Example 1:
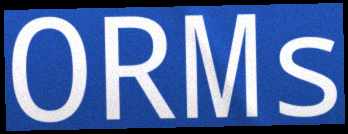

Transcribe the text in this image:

ORMs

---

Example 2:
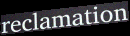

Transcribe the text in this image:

reclamation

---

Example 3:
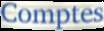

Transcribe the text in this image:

Comptes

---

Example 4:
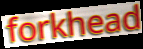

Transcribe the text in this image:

forkhead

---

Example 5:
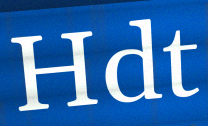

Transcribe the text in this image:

Hdt